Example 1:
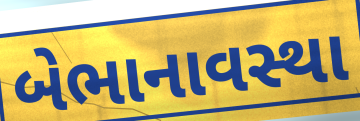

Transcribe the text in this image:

બેભાનાવસ્થા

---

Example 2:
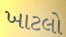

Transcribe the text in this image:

ખાટલો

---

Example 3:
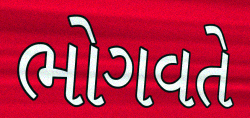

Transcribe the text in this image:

ભોગવતે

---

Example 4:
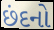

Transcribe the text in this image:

છંદનો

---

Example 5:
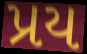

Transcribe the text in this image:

પ્રય